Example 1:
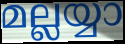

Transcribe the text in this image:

മല്ലയ്യാ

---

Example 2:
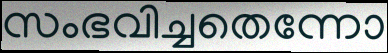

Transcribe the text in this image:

സംഭവിച്ചതെന്നോ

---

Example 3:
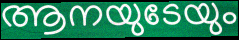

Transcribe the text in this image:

ആനയുടേയും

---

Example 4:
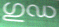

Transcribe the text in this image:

ഗുഡ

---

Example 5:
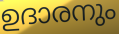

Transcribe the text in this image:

ഉദാരനും